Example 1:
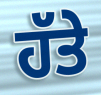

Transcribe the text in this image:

ਹੱਤੇ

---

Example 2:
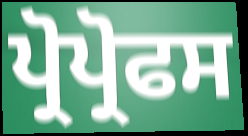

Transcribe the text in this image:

ਪ੍ਰੋਪ੍ਰੋਫਸ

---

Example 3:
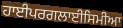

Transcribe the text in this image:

ਹਾਈਪਰਗਲਾਈਸਿਮੀਆ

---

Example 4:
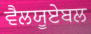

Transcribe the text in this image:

ਵੈਲਯੂਏਬਲ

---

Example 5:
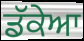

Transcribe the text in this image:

ਡੱਕੇਆ